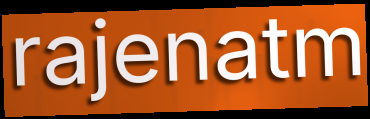
rajenatm